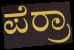
ಪೆರ್ರಾ